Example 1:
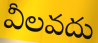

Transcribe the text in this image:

వీలవదు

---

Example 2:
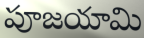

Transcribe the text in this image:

పూజయామి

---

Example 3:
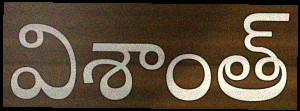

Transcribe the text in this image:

విశాంత్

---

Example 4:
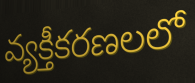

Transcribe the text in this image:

వ్యక్తీకరణలలో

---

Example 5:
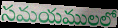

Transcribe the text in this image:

సమయములలో